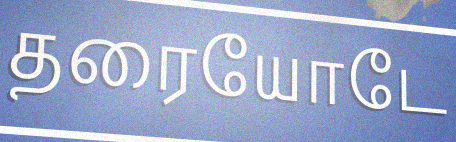
தரையோடே